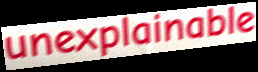
unexplainable